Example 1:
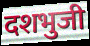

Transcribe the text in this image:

दशभुजी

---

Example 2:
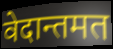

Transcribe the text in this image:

वेदान्तमत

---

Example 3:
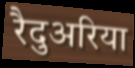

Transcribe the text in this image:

रैदुअरिया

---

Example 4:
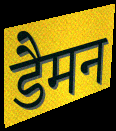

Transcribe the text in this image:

डैमन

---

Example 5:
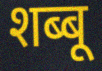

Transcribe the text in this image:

शब्बू